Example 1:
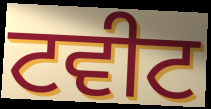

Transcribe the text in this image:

ਟਵੀਟ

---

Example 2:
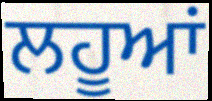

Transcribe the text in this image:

ਲਹੂਆਂ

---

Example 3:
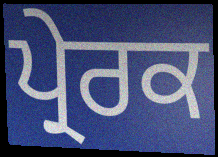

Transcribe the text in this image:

ਪ੍ਰੇਰਕ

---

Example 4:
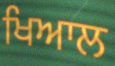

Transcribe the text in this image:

ਖਿਆਲ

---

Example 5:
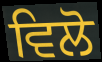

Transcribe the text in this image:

ਵਿਲੋ